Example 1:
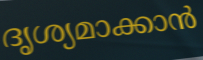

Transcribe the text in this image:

ദൃശ്യമാക്കാൻ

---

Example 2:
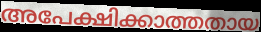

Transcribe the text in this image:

അപേക്ഷിക്കാത്തതായ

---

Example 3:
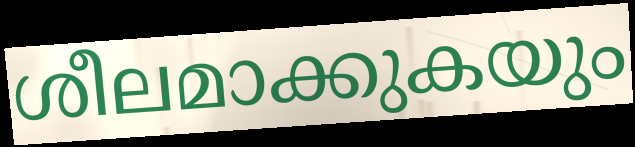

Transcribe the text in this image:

ശീലമാക്കുകയും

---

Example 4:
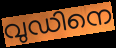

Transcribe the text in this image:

വുഡിനെ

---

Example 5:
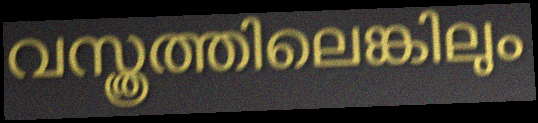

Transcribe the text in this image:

വസ്ത്രത്തിലെങ്കിലും